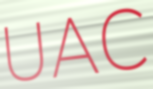
UAC